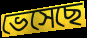
ভেসেছে